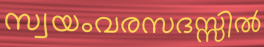
സ്വയംവരസദസ്സിൽ